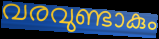
വരവുണ്ടാകും